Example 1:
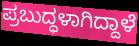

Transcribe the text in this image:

ಪ್ರಬುದ್ಧಳಾಗಿದ್ದಾಳೆ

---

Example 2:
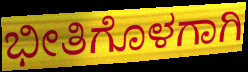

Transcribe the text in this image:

ಭೀತಿಗೊಳಗಾಗಿ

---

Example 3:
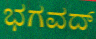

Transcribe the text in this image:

ಭಗವದ್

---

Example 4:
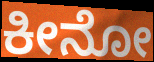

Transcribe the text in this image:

ಕೀನೋ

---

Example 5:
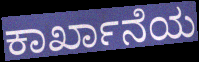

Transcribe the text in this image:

ಕಾರ್ಖಾನೆಯ